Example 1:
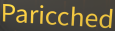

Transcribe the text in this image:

Paricched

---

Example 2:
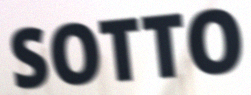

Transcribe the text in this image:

SOTTO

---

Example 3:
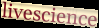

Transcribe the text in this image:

livescience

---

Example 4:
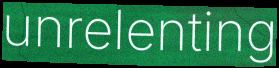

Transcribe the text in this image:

unrelenting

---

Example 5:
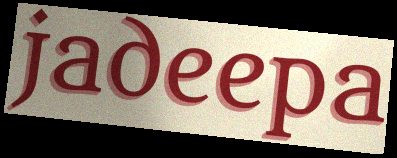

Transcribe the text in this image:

jadeepa